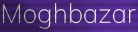
Moghbazar